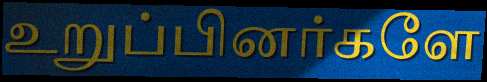
உறுப்பினர்களே